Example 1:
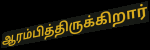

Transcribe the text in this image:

ஆரம்பித்திருக்கிறார்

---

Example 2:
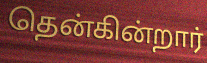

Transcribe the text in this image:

தென்கின்றார்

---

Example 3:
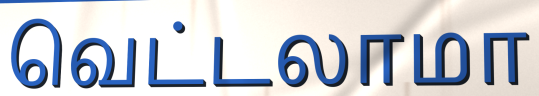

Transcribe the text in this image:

வெட்டலாமா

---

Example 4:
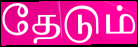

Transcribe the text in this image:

தேடும்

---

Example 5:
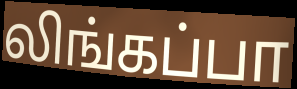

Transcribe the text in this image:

லிங்கப்பா